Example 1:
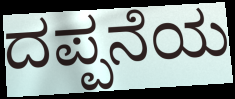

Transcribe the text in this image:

ದಪ್ಪನೆಯ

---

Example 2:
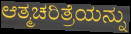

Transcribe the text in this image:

ಆತ್ಮಚರಿತ್ರೆಯನ್ನು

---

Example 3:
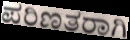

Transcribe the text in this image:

ಪರಿಣತರಾಗಿ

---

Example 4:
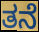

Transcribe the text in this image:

ತನೆ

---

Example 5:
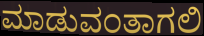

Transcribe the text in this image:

ಮಾಡುವಂತಾಗಲಿ